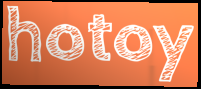
hotoy